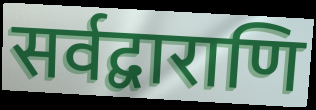
सर्वद्वाराणि